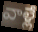
వాళ్లే